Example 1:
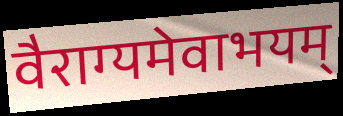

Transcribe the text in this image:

वैराग्यमेवाभयम्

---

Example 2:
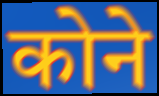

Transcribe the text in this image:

कोने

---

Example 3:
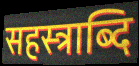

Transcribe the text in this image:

सहस्त्राब्दि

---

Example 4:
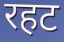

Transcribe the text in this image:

रहट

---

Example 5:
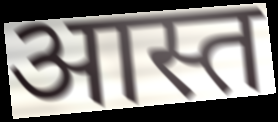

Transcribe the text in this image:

आस्त